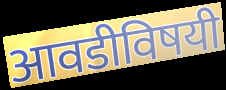
आवडीविषयी